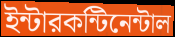
ইন্টারকন্টিনেন্টাল